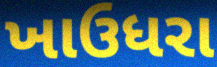
ખાઉધરા